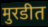
मुरडीत